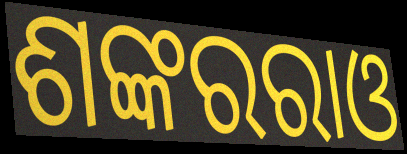
ଶଙ୍କରରାଓ